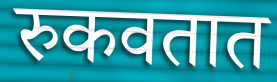
रुकवतात